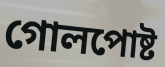
গোলপোষ্ট